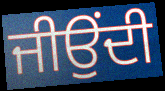
ਜੀਉਂਦੀ